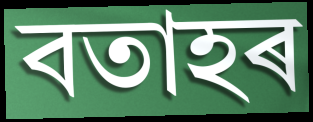
বতাহৰ